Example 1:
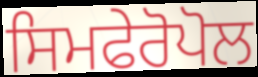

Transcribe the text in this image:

ਸਿਮਫੇਰੋਪੋਲ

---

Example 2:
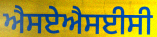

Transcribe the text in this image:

ਐਸਏਐਸਈਸੀ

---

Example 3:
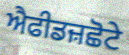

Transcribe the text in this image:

ਐਫੀਡਜ਼ਛੋਟੇ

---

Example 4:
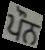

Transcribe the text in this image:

ਪੌਨ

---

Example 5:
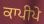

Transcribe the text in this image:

ਕਾਪੀਪੇ